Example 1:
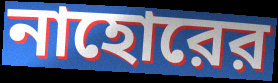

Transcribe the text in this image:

নাহোরের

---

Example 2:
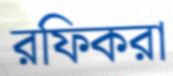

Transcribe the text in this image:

রফিকরা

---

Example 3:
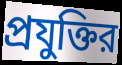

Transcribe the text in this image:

প্রযুক্তির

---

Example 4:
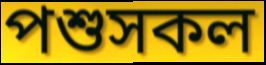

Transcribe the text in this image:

পশুসকল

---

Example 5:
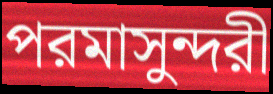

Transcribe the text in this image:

পরমাসুন্দরী